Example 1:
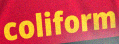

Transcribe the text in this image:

coliform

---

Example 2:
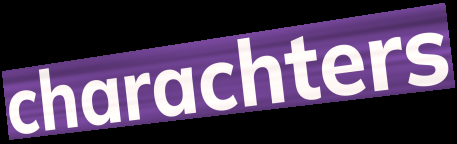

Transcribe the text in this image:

charachters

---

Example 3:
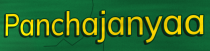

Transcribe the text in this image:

Panchajanyaa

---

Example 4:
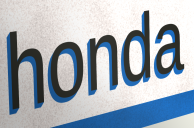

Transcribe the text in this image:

honda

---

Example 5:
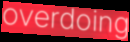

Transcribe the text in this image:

overdoing